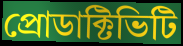
প্রোডাক্টিভিটি